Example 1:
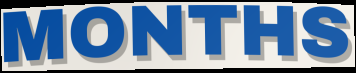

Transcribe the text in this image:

MONTHS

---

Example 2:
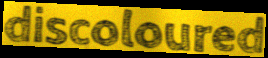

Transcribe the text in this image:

discoloured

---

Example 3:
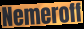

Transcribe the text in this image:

Nemeroff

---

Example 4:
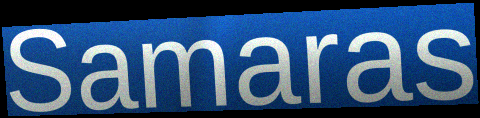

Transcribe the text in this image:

Samaras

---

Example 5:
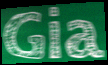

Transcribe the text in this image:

Gia